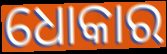
ଧୋକାର